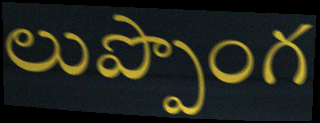
లుప్పొంగ